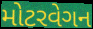
મોટરવેગન